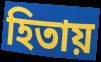
হিতায়